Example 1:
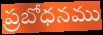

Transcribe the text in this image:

ప్రబోధనము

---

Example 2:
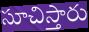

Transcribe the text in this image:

సూచిస్తారు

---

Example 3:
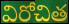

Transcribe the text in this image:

విరోచిత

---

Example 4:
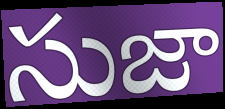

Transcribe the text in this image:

సుజా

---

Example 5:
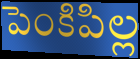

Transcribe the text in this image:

పెంకిపిల్ల